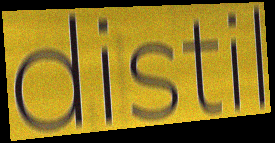
distil